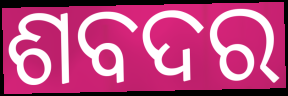
ଶବଦର